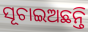
ସୂଚାଇଅଛନ୍ତି